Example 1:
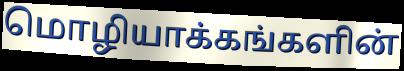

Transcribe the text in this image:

மொழியாக்கங்களின்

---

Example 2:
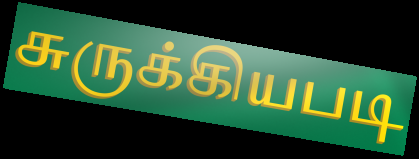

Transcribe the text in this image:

சுருக்கியபடி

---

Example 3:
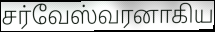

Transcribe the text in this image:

சர்வேஸ்வரனாகிய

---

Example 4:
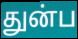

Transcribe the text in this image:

துன்ப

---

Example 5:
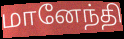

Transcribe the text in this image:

மானேந்தி